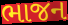
ભાજન